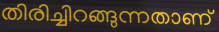
തിരിച്ചിറങ്ങുന്നതാണ്